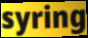
syring